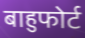
बाहुफोर्ट